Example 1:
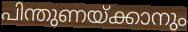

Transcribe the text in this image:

പിന്തുണയ്ക്കാനും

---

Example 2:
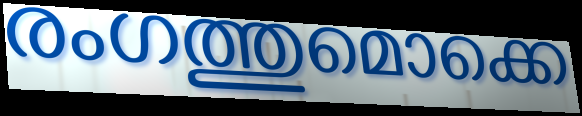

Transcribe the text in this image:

രംഗത്തുമൊക്കെ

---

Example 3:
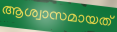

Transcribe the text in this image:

ആശ്വാസമായത്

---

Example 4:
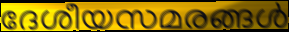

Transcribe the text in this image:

ദേശീയസമരങ്ങൾ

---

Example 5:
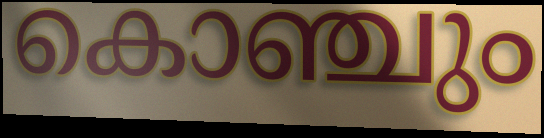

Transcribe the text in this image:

കൊഞ്ചും